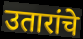
उतारांचे